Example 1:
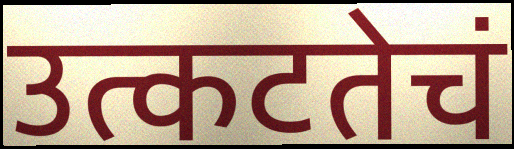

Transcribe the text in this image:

उत्कटतेचं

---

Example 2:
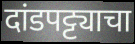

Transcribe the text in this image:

दांडपट्ट्याचा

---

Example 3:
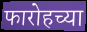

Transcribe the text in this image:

फारोहच्या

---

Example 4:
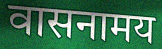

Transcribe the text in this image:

वासनामय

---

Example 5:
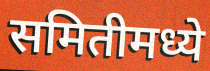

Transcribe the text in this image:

समितीमध्ये